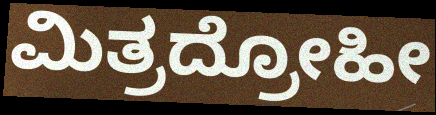
ಮಿತ್ರದ್ರೋಹೀ